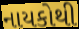
નાયકોથી